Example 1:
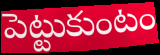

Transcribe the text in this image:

పెట్టుకుంటం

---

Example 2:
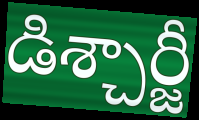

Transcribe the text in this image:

డిశ్చార్జీ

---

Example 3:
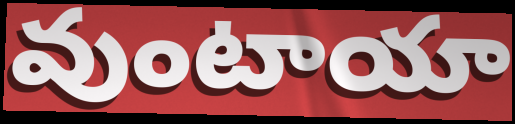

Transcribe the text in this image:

వుంటాయా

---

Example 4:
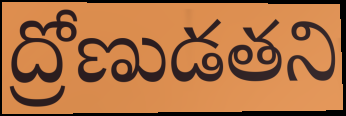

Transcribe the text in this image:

ద్రోణుడతని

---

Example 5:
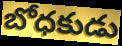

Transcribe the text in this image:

బోధకుడు